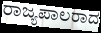
ರಾಜ್ಯಪಾಲರಾದ